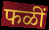
फळीं